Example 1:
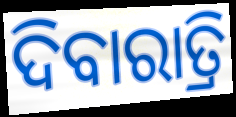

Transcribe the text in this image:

ଦିବାରାତ୍ରି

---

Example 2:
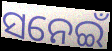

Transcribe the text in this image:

ସନେଇଁ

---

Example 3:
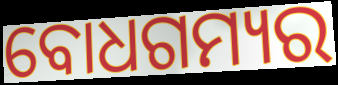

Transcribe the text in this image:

ବୋଧଗମ୍ୟର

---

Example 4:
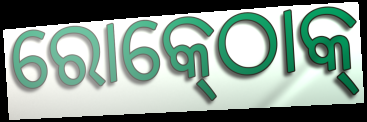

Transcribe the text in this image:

ରୋକ୍‍ଠୋକ୍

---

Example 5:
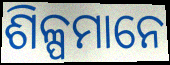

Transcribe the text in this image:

ଶିଳ୍ପମାନେ